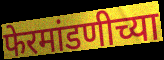
फेरमांडणीच्या